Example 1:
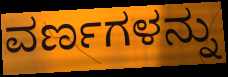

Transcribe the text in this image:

ವರ್ಣಗಳನ್ನು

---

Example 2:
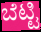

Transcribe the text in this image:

ಬೆಟ್ಟಿ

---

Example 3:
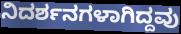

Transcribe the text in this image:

ನಿದರ್ಶನಗಳಾಗಿದ್ದವು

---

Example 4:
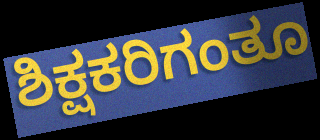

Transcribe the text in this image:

ಶಿಕ್ಷಕರಿಗಂತೂ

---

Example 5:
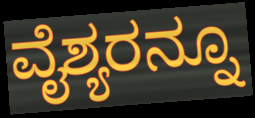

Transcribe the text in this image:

ವೈಶ್ಯರನ್ನೂ